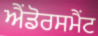
ਐਂਡੋਰਸਮੈਂਟ